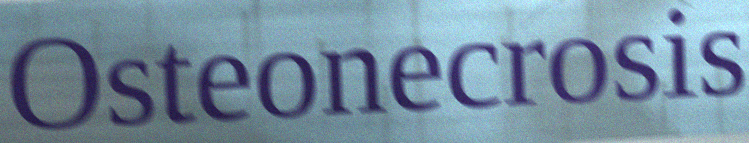
Osteonecrosis